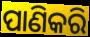
ପାଣିକରି